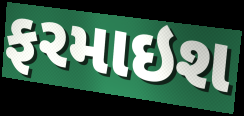
ફરમાઇશ